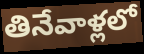
తినేవాళ్లలో